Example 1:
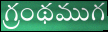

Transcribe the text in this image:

గ్రంథముగ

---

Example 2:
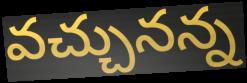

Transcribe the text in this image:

వచ్చునన్న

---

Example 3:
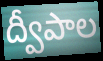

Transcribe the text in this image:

ద్వీపాల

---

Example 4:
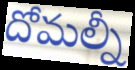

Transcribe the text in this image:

దోమల్నీ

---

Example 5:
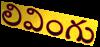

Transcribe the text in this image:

లివింగు